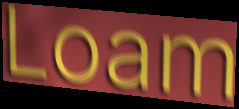
Loam